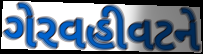
ગેરવહીવટને